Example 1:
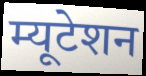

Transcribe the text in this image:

म्यूटेशन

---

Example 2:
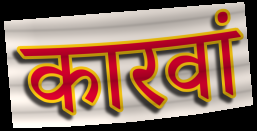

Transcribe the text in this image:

कारवां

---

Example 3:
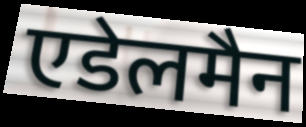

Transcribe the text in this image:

एडेलमैन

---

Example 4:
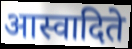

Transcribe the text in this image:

आस्वादिते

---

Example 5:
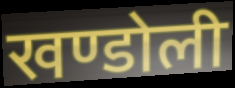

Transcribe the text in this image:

खण्डोली